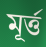
মূর্ত্ত